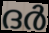
ദർ